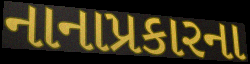
નાનાપ્રકારના